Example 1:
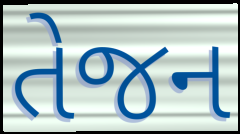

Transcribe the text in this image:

તેજન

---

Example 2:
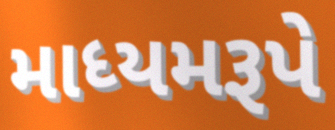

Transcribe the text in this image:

માધ્યમરૂપે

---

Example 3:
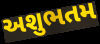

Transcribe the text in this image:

અશુભતમ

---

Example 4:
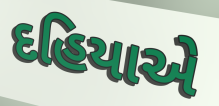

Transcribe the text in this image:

દહિયાએ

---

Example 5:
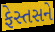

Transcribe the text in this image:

ફેસ્તસને